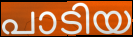
പാടിയ